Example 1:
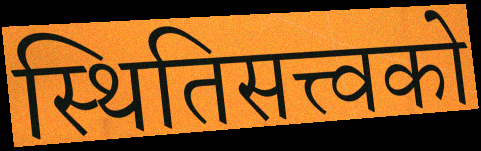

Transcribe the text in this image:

स्थितिसत्त्वको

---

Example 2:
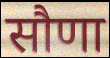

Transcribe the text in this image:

सौणा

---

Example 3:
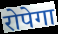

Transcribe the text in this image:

रोपेगा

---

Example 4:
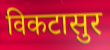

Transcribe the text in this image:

विकटासुर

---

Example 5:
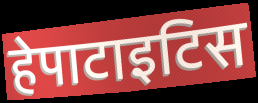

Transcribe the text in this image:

हेपाटाइटिस